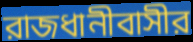
রাজধানীবাসীর